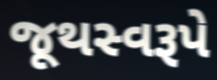
જૂથસ્વરૂપે